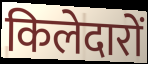
किलेदारों